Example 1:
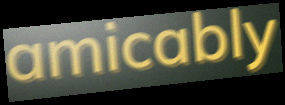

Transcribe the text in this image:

amicably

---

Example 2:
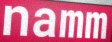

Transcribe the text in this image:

namm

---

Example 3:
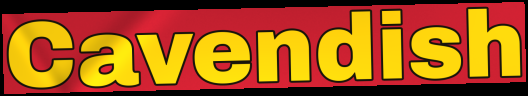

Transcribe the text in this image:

Cavendish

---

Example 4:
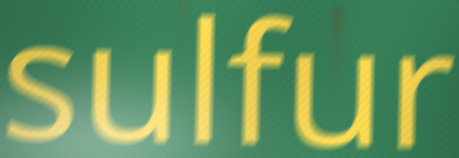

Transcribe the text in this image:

sulfur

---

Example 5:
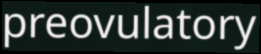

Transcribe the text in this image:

preovulatory